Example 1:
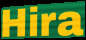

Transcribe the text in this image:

Hira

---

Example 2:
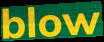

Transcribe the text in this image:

blow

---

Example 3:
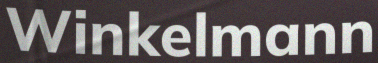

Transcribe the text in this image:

Winkelmann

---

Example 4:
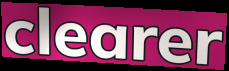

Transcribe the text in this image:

clearer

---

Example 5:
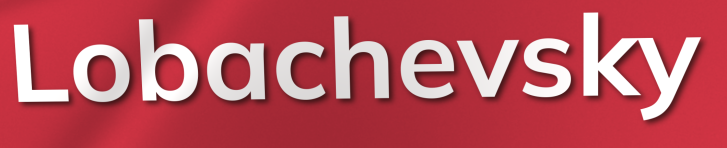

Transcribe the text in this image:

Lobachevsky